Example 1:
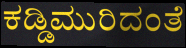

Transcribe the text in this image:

ಕಡ್ಡಿಮುರಿದಂತೆ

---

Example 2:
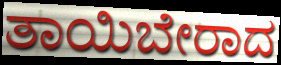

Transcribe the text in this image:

ತಾಯಿಬೇರಾದ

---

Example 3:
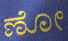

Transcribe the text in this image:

ಣೋ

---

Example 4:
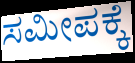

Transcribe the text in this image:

ಸಮೀಪಕ್ಕೆ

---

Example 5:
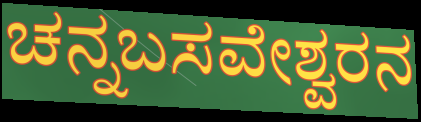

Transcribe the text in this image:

ಚನ್ನಬಸವೇಶ್ವರನ